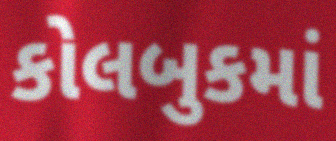
કોલબુકમાં